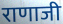
राणाजी